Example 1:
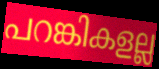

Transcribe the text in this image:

പറങ്കികളല്ല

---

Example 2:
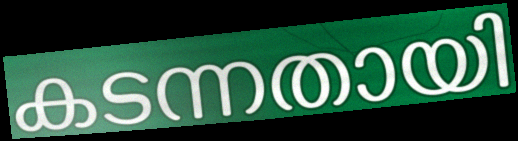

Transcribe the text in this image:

കടന്നതായി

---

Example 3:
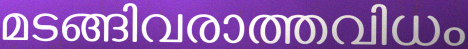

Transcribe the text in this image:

മടങ്ങിവരാത്തവിധം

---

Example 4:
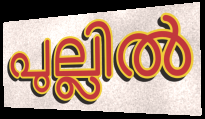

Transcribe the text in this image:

പുല്ലിൽ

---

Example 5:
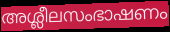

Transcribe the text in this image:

അശ്ലീലസംഭാഷണം